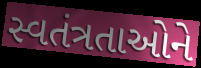
સ્વતંત્રતાઓને